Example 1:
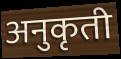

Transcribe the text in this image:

अनुकृती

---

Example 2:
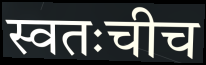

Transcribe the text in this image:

स्वतःचीच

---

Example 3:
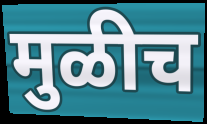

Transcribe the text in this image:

मुळीच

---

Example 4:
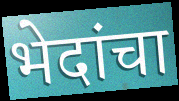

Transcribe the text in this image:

भेदांचा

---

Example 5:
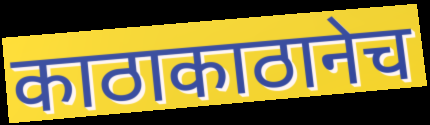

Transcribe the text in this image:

काठाकाठानेच